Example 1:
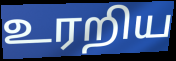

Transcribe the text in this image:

உரறிய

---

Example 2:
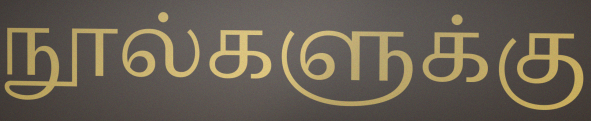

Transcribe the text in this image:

நூல்களுக்கு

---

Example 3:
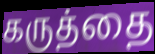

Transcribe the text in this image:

கருத்தை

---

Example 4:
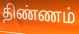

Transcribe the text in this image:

திண்ணம்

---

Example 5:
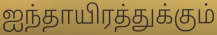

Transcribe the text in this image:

ஐந்தாயிரத்துக்கும்